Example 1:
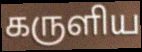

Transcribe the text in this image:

கருளிய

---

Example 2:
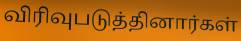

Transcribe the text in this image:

விரிவுபடுத்தினார்கள்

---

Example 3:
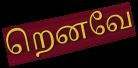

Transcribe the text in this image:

றெனவே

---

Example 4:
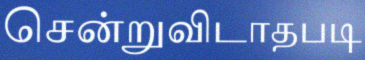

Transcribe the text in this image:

சென்றுவிடாதபடி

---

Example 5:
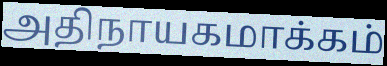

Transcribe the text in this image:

அதிநாயகமாக்கம்